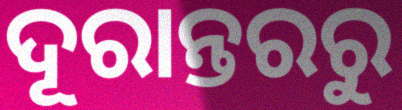
ଦୂରାନ୍ତରରୁ